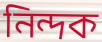
নিন্দক